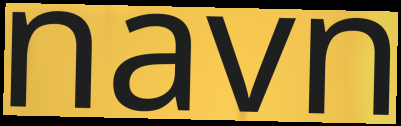
navn